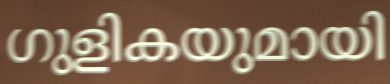
ഗുളികയുമായി